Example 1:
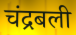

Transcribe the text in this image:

चंद्रबली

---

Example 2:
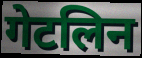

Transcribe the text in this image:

गेटलिन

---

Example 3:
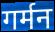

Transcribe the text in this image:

गर्मन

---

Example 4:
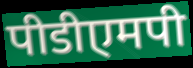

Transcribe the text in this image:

पीडीएमपी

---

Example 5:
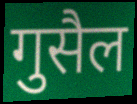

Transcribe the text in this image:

गुसैल